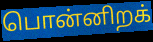
பொன்னிறக்